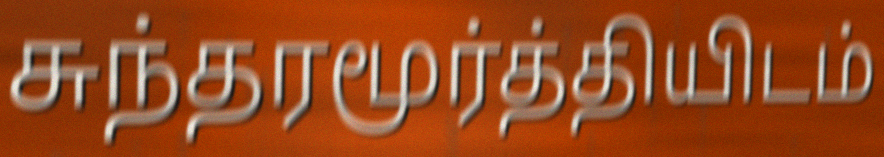
சுந்தரமூர்த்தியிடம்